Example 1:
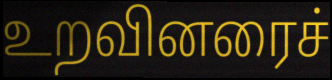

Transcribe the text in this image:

உறவினரைச்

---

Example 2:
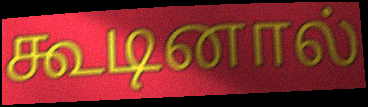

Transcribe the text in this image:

கூடினால்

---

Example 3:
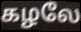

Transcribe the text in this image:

கழலே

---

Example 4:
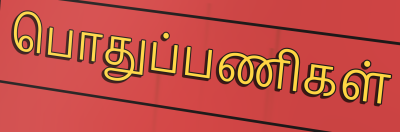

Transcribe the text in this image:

பொதுப்பணிகள்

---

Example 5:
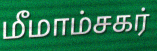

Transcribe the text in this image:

மீமாம்சகர்